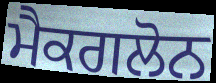
ਮੈਕਗਲੋਨ